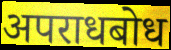
अपराधबोध